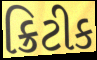
ક્રિટીક